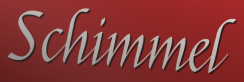
Schimmel